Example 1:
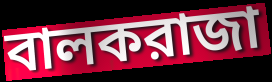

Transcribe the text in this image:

বালকরাজা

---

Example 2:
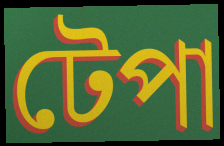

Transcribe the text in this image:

টেপা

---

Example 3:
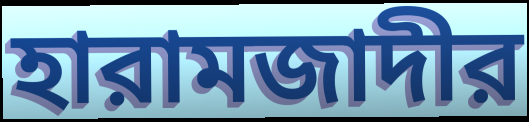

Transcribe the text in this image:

হারামজাদীর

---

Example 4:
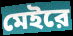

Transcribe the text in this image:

মেইরে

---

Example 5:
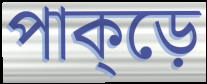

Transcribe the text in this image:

পাক্ড়ে